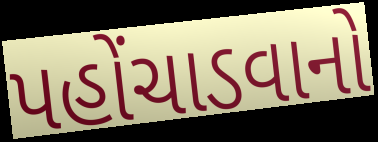
પહોંચાડવાનો